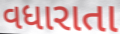
વધારાતા